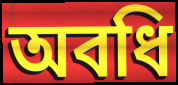
অবধি